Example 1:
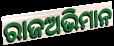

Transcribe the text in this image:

ରାଜଅଭିମାନ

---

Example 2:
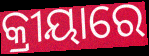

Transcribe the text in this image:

କ୍ରୀୟାରେ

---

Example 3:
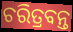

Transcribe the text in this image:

ଚରିତ୍ରବନ୍ତ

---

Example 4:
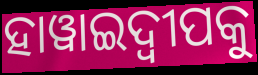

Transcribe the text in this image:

ହାୱାଇଦ୍ଵୀପକୁ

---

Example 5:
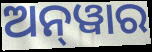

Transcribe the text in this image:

ଅନ୍‌ୱାର